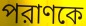
পরাণকে